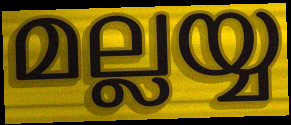
മല്ലയ്യ